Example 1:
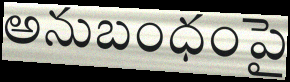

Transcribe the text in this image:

అనుబంధంపై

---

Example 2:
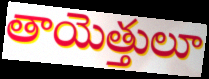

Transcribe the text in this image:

తాయెత్తులూ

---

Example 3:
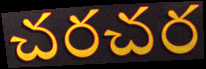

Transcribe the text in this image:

చరచర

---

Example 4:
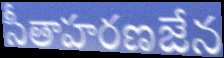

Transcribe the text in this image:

సీతాహరణజేన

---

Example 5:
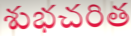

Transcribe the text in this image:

శుభచరిత